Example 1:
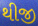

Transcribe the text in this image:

થીજી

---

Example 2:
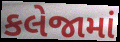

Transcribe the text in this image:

કલેજામાં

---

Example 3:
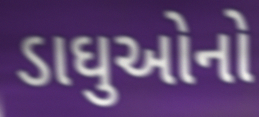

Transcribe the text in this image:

ડાઘુઓનો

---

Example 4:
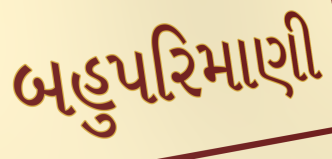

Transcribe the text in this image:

બહુપરિમાણી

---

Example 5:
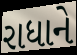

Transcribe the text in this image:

રાધાને